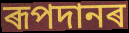
ৰূপদানৰ